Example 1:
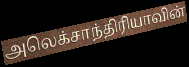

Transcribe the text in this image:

அலெக்சாந்திரியாவின்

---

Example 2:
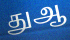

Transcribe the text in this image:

துஆ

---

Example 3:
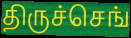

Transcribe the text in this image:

திருச்செங்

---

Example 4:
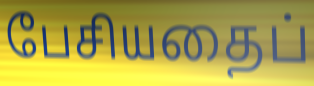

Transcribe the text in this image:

பேசியதைப்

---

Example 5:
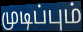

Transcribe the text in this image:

முடிப்பும்